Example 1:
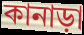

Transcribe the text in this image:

কানাড়া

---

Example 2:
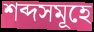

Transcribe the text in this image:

শব্দসমূহে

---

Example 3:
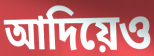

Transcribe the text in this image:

আদিয়েও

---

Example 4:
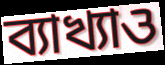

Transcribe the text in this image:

ব্যাখ্যাও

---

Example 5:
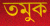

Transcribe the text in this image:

তমুক